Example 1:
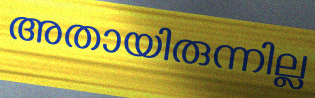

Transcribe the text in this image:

അതായിരുന്നില്ല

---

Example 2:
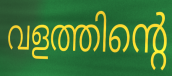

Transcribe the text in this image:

വളത്തിന്റെ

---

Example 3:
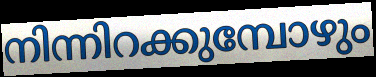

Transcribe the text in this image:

നിന്നിറക്കുമ്പോഴും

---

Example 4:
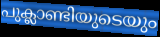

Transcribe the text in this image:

പുക്ലാണ്ടിയുടെയും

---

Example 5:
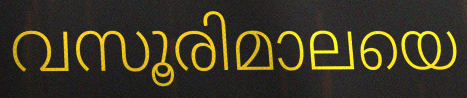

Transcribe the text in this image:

വസൂരിമാലയെ